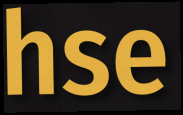
hse